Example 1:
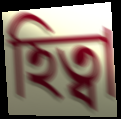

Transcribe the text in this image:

হিত্বা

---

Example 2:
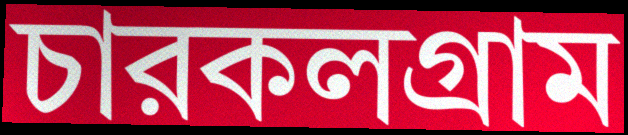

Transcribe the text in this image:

চারকলগ্রাম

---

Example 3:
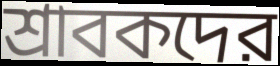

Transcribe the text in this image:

শ্রাবকদের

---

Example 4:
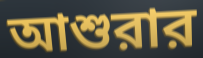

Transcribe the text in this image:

আশুরার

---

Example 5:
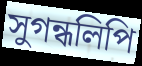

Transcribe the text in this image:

সুগন্ধলিপি